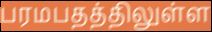
பரமபதத்திலுள்ள